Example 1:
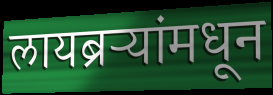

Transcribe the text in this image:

लायब्रऱ्यांमधून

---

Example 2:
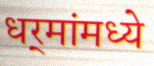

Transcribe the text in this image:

धर्मांमध्ये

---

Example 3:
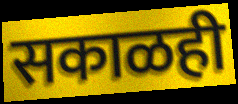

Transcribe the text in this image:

सकाळही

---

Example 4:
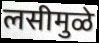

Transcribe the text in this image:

लसीमुळे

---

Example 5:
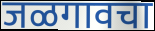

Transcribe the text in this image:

जळगावचा